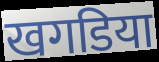
खगडिया